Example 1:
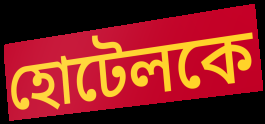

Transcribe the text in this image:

হোটেলকে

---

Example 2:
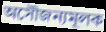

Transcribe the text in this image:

অসৌজন্যমূলক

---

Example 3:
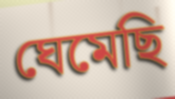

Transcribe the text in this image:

ঘেমেছি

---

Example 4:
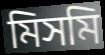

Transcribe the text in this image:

মিসমি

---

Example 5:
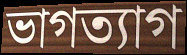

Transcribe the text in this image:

ভাগত্যাগ